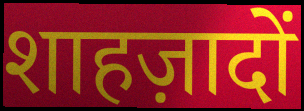
शाहज़ादों